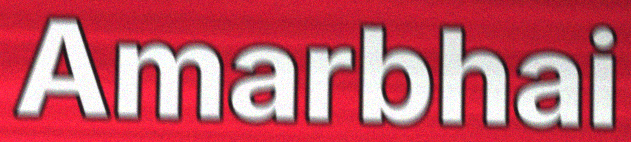
Amarbhai